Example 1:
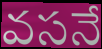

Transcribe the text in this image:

వసనే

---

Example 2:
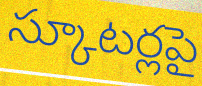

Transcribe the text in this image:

స్కూటర్లపై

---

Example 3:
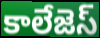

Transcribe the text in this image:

కాలేజెస్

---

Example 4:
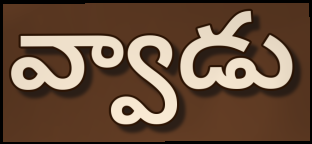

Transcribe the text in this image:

వ్వాడు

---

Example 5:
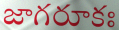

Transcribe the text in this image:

జాగరూకః